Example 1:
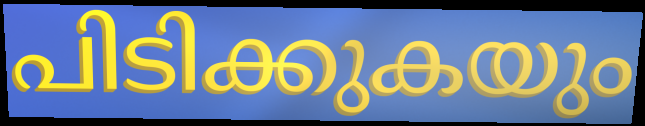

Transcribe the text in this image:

പിടിക്കുകയും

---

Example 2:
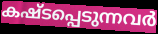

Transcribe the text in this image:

കഷ്ടപ്പെടുന്നവർ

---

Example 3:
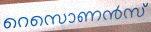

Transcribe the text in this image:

റെസൊണൻസ്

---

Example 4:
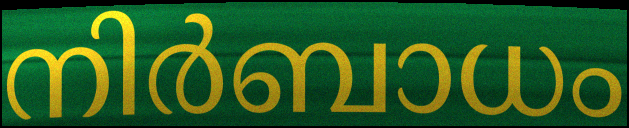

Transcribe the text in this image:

നിർബാധം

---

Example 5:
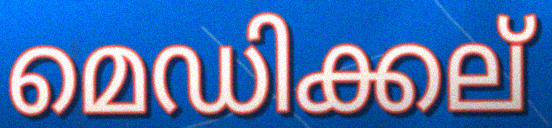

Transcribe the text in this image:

മെഡിക്കല്